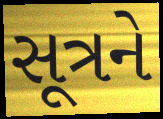
સૂત્રને